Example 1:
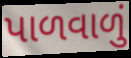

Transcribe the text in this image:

પાળવાળું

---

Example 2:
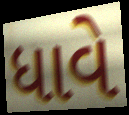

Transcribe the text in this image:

ધાવે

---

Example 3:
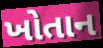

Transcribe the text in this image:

ખોતાન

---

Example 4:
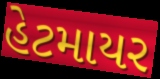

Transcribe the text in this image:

હેટમાયર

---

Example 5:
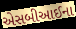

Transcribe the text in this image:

એસબીઆઈના